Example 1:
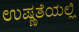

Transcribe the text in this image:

ಉಷ್ಣತೆಯಲ್ಲಿ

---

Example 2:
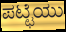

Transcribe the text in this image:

ಪಟ್ಟೆಯು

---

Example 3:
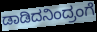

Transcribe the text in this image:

ಡಾಡಿದನಿಂದ್ರಂಗೆ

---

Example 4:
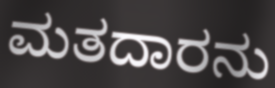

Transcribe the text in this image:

ಮತದಾರನು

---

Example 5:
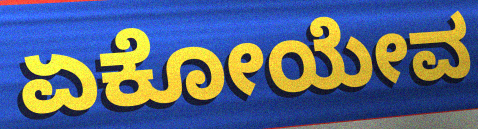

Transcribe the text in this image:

ಏಕೋಯೇವ